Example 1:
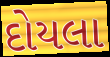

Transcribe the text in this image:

દોયલા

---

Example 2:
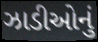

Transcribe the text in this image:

ઝાડીઓનું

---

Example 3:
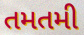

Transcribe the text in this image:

તમતમી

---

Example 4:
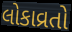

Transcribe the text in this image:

લોકાવ્રતો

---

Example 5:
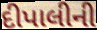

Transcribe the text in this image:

દીપાલીની